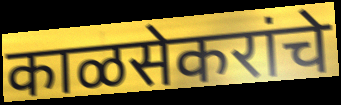
काळसेकरांचे